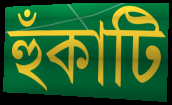
হুঁকাটি